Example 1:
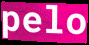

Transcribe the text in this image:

pelo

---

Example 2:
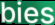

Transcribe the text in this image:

bies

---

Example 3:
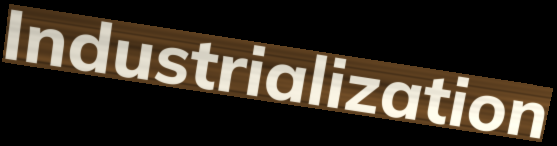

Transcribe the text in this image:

Industrialization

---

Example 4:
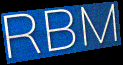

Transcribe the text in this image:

RBM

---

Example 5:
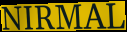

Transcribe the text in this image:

NIRMAL